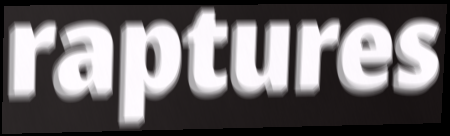
raptures